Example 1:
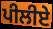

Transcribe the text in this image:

ਪੀਲੀਏ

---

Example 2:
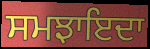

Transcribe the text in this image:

ਸਮਝਾਇਦਾ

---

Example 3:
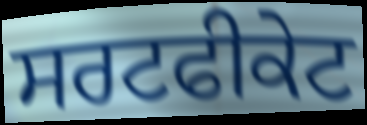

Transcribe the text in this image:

ਸਰਟਫੀਕੇਟ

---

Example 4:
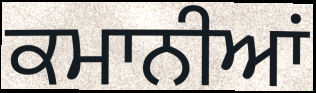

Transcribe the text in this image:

ਕਮਾਨੀਆਂ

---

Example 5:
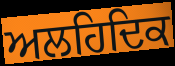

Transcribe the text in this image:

ਅਲਹਿਦਿਕ